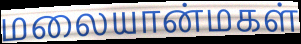
மலையான்மகள்